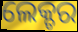
ଲେକ୍ଚର